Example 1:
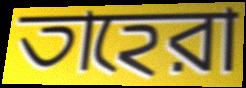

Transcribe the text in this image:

তাহেরা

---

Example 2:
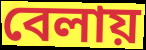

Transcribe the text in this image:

বেলায়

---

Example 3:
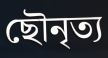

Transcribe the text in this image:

ছৌনৃত্য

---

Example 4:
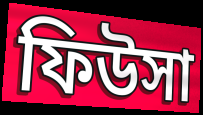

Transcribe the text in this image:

ফিউসা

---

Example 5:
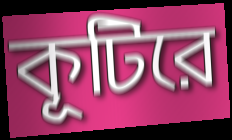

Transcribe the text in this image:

কূটিরে